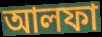
আলফা